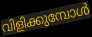
വിളിക്കുമ്പോൾ